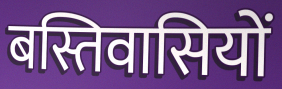
बस्तिवासियों